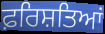
ਫ਼ਰਿਸ਼ਤਿਆਂ